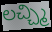
లచ్చ్మి